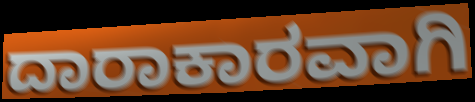
ದಾರಾಕಾರವಾಗಿ